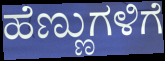
ಹೆಣ್ಣುಗಳಿಗೆ